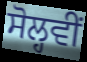
ਸੋਲ੍ਹਵੀਂ